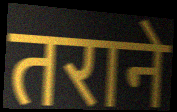
तराने